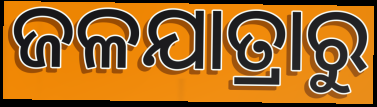
ଜଳଯାତ୍ରାରୁ